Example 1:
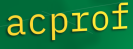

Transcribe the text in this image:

acprof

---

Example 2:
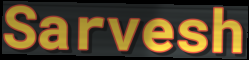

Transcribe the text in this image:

Sarvesh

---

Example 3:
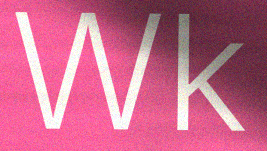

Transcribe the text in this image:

Wk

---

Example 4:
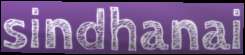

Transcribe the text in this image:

sindhanai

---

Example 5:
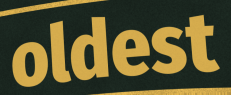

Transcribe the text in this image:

oldest